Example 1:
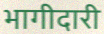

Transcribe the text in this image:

भागीदारी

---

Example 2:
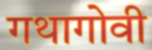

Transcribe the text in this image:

गथागोवी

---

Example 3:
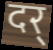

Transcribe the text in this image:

दर्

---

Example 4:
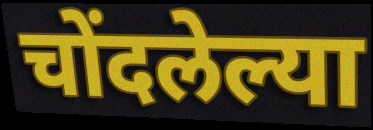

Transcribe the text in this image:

चोंदलेल्या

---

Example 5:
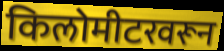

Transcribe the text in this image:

किलोमीटरवरून